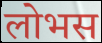
लोभस